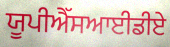
ਯੂਪੀਐੱਸਆਈਡੀਏ